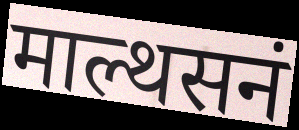
माल्थसनं